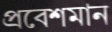
প্রবেশমান